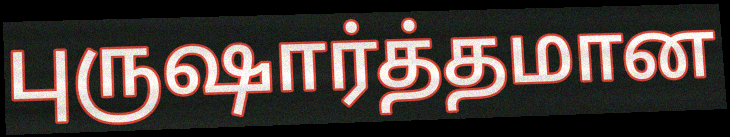
புருஷார்த்தமான